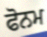
ਫੋਨਮ